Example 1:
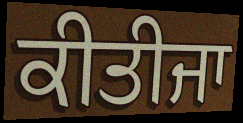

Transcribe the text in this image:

ਕੀਤੀਜਾ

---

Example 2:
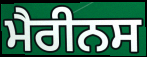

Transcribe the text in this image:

ਮੈਰੀਨਸ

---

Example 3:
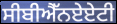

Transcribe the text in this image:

ਸੀਬੀਐੱਨਏਏਟੀ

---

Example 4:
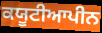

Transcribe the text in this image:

ਕਯੂਟੀਆਪੀਨ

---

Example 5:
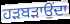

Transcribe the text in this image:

ਹੜਬੜਾਉਂਦਾ